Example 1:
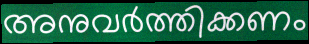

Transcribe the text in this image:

അനുവർത്തിക്കണം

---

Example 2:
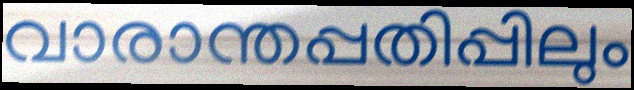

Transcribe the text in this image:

വാരാന്തപ്പതിപ്പിലും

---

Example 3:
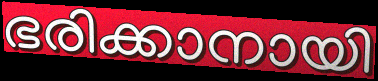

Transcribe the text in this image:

ഭരിക്കാനായി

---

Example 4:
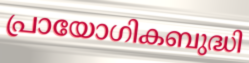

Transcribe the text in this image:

പ്രായോഗികബുദ്ധി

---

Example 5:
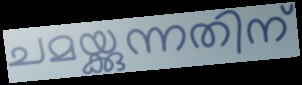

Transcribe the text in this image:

ചമയ്ക്കുന്നതിന്